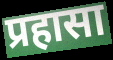
प्रहासा